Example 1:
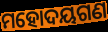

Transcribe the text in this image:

ମହୋଦୟଗଣ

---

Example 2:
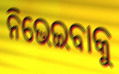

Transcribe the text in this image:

ନିଭେଇବାକୁ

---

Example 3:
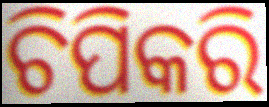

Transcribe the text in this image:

ଚିପିକରି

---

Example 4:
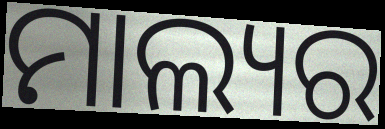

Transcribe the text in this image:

ମାଲ୍ୟର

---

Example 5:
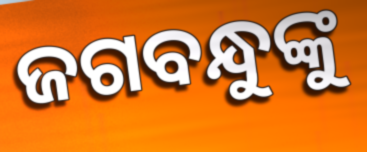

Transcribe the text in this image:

ଜଗବନ୍ଧୁଙ୍କୁ